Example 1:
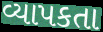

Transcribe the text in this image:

વ્યાપકતા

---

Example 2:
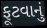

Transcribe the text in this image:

ફૂટવાનું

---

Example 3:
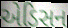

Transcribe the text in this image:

એડિસન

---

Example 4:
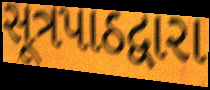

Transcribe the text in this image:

સૂત્રપાઠદ્વારા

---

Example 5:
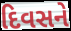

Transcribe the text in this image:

દિવસને